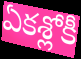
ఏకశ్లోకీ